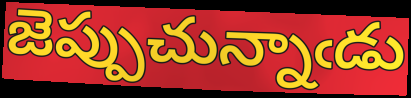
జెప్పుచున్నాఁడు